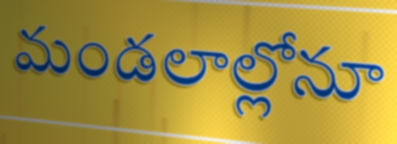
మండలాల్లోనూ